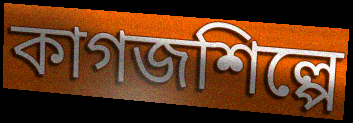
কাগজশিল্পে